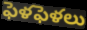
ఫెళఫెళలు